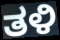
ತಳಿ